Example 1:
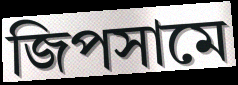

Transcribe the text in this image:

জিপসামে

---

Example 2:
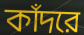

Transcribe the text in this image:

কাঁদরে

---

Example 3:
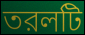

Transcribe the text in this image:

তরলটি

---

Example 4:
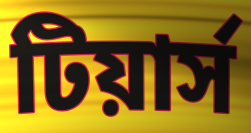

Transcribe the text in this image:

টিয়ার্স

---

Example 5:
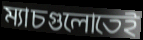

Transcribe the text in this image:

ম্যাচগুলোতেই